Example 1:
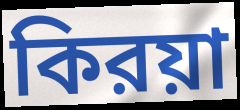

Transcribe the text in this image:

কিরয়া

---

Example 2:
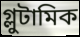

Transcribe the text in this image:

গ্লুটামিক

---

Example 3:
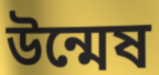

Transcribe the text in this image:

উন্মেষ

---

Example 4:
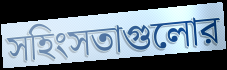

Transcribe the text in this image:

সহিংসতাগুলোর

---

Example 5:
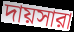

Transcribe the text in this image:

দায়সারা